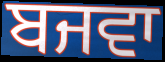
ਬਜਵਾ